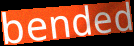
bended